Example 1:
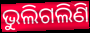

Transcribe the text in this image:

ଭୁଲିଗଲିଣି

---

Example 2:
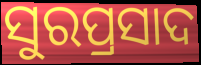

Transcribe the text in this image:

ସୁରପ୍ରସାଦ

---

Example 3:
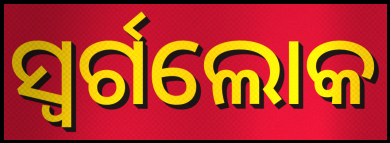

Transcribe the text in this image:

ସ୍ୱର୍ଗଲୋକ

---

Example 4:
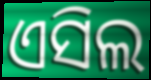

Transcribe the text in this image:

ଏସିଲ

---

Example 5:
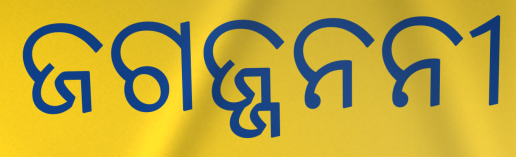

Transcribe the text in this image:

ଜଗଜ୍ଜନନୀ